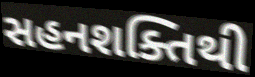
સહનશક્તિથી